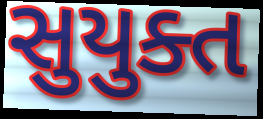
સુયુક્ત